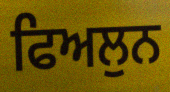
ਫਿਅਲੁਨ